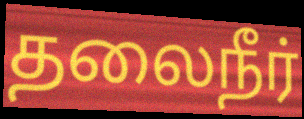
தலைநீர்